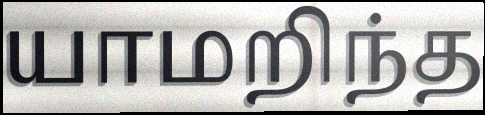
யாமறிந்த